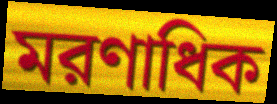
মরণাধিক